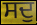
ਸਦੁ